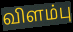
விளம்பு